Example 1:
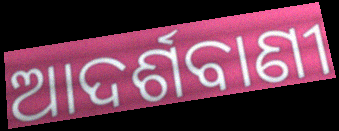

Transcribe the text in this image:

ଆଦର୍ଶବାଣୀ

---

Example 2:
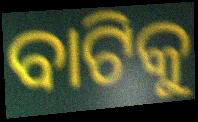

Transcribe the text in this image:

ବାଟିକୁ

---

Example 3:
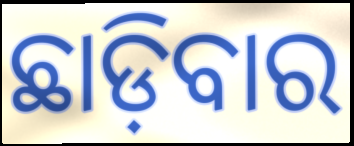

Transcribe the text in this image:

ଛାଡ଼ିବାର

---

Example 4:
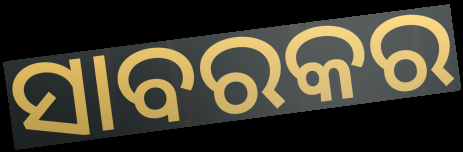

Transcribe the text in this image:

ସାବରକର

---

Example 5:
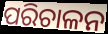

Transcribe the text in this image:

ପରିଚାଳନ